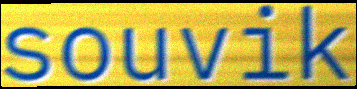
souvik